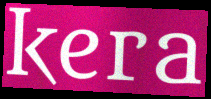
kera